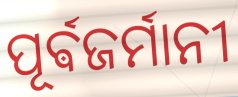
ପୂର୍ଵଜର୍ମାନୀ